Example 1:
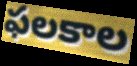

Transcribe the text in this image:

ఫలకాల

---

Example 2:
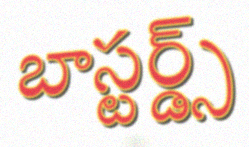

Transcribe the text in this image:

బాస్టర్డ్స్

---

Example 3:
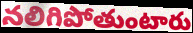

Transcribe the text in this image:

నలిగిపోతుంటారు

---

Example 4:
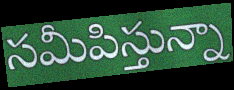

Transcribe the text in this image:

సమీపిస్తున్నా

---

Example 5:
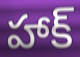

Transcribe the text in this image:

హాక్